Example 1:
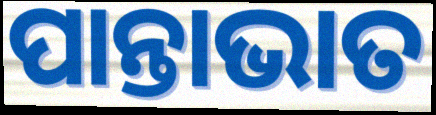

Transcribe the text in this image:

ପାନ୍ତାଭାତ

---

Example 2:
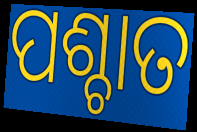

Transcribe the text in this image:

ପଶ୍ଚାତ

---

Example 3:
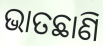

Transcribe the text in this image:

ଭାତଛାଣି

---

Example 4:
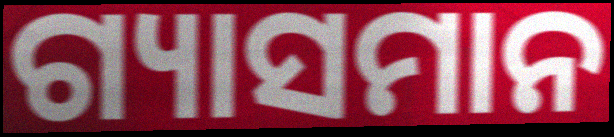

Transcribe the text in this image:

ଗ୍ୟାସମାନ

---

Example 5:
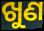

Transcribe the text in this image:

ଖୁଣ